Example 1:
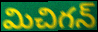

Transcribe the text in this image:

మిచిగన్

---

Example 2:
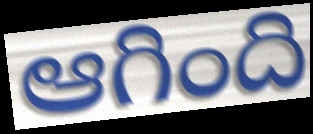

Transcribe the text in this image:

ఆగింది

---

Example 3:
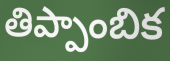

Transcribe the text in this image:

తిప్పాంబిక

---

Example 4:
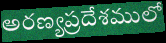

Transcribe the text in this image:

అరణ్యప్రదేశములో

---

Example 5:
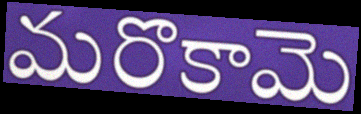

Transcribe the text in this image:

మరొకామె